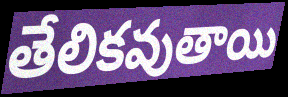
తేలికవుతాయి